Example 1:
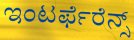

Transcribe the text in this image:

ಇಂಟರ್ಫೆರೆನ್ಸ್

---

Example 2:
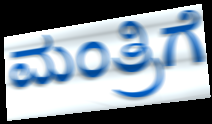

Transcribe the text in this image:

ಮಂತ್ರಿಗೆ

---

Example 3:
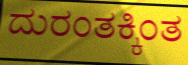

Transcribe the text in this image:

ದುರಂತಕ್ಕಿಂತ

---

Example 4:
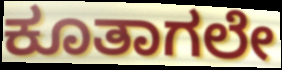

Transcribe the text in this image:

ಕೂತಾಗಲೇ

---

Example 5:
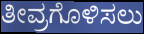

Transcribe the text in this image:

ತೀವ್ರಗೊಳಿಸಲು